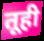
तूही